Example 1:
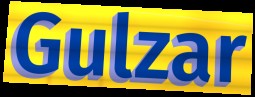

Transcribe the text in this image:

Gulzar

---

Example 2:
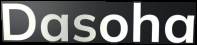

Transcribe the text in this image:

Dasoha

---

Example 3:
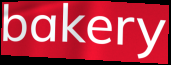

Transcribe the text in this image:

bakery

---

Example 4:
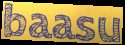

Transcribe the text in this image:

baasu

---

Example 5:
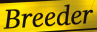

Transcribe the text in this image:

Breeder